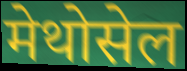
मेथोसेल